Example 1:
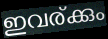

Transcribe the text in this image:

ഇവര്ക്കും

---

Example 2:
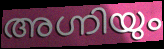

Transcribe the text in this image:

അഗ്നിയും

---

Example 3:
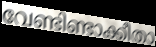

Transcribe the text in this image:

വേണ്ടിണ്ടാക്കീതാ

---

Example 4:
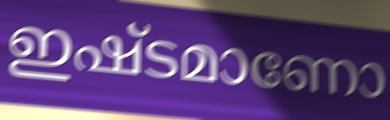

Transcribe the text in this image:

ഇഷ്ടമാണോ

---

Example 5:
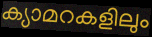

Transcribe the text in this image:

ക്യാമറകളിലും